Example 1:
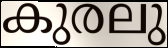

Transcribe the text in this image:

കുരലു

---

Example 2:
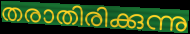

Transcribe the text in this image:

തരാതിരിക്കുന്നു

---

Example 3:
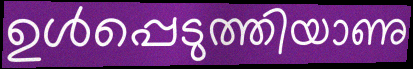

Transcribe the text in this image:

ഉൾപ്പെടുത്തിയാണു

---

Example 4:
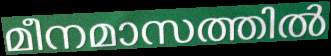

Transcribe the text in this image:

മീനമാസത്തിൽ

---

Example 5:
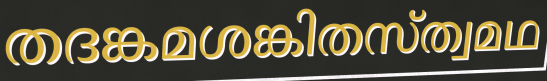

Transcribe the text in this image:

തദങ്കമശങ്കിതസ്ത്വമഥ